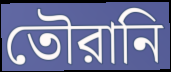
তৌরানি